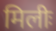
मिलीः